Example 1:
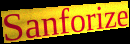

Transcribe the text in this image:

Sanforize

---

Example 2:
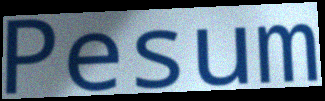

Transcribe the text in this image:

Pesum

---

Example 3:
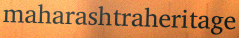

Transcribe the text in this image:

maharashtraheritage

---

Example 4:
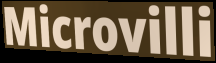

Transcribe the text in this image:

Microvilli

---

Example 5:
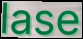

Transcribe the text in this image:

lase